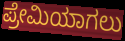
ಪ್ರೇಮಿಯಾಗಲು